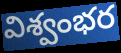
విశ్వంభర